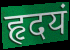
हृदयं